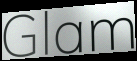
Glam